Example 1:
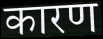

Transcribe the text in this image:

कारण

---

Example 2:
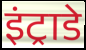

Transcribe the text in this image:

इंट्राडे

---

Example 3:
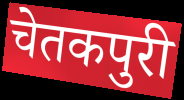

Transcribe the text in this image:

चेतकपुरी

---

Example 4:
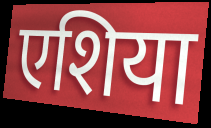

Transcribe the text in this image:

एशिया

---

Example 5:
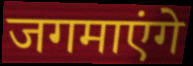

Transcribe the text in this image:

जगमाएंगे